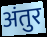
अंतुर